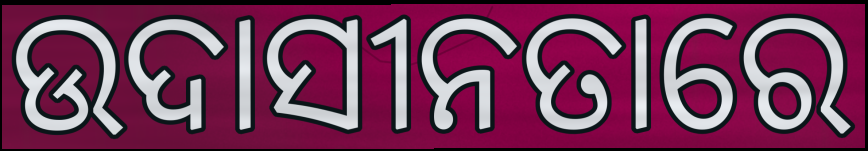
ଉଦାସୀନତାରେ